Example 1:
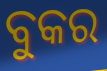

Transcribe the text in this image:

ବୁକର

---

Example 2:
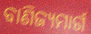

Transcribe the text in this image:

ବାଣିଜ୍ୟମାର୍ଗ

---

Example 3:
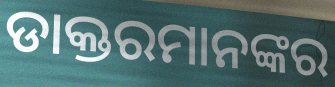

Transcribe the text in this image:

ଡାକ୍ତରମାନଙ୍କର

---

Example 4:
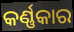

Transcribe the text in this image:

କର୍ଣ୍ଣକାର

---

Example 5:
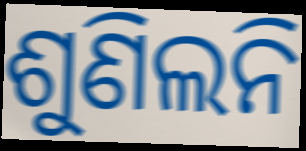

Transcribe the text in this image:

ଶୁଣିଲନି